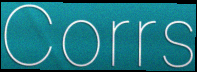
Corrs